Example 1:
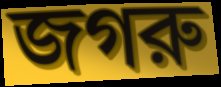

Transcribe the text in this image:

জগরু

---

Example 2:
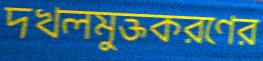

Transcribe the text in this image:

দখলমুক্তকরণের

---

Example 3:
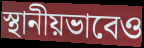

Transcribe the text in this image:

স্থানীয়ভাবেও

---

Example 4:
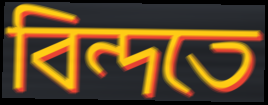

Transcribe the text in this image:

বিন্দতে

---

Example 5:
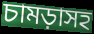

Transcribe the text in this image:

চামড়াসহ